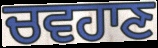
ਚਵਹਾਣ